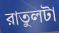
রাতুলটা